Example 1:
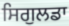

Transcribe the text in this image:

ਸਿਗੁਲਡਾ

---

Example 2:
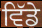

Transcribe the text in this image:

ਵਿੱਡੇ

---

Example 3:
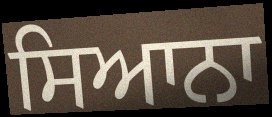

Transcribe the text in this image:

ਸਿਆਨਾ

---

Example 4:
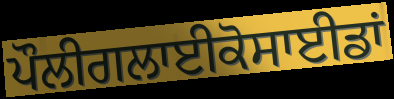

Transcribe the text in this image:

ਪੌਲੀਗਲਾਈਕੋਸਾਈਡਾਂ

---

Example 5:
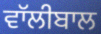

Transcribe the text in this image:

ਵਾੱਲੀਬਾਲ